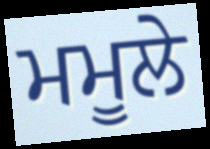
ਮਮੂਲੇ